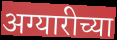
अग्यारीच्या